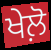
ਖੇਲ਼ੋ